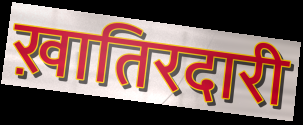
ख़ातिरदारी